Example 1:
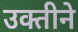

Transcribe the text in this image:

उक्तीने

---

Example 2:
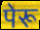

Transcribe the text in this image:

पेरू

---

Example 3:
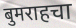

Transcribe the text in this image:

बुमराहचा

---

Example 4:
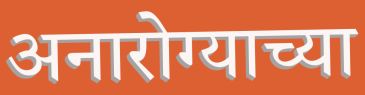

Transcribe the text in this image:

अनारोग्याच्या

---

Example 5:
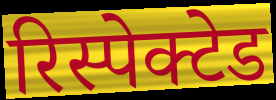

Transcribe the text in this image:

रिस्पेक्टेड